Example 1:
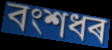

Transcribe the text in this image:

বংশধৰ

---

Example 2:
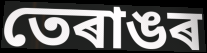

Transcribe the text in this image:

তেৰাঙৰ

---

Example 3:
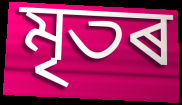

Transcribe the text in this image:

মৃতৰ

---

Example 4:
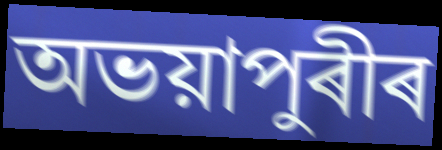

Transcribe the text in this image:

অভয়াপুৰীৰ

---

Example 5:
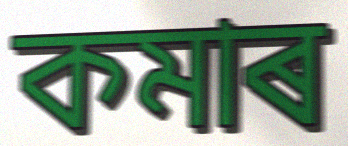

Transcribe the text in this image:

কমাৰ